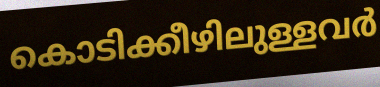
കൊടിക്കീഴിലുള്ളവർ